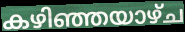
കഴിഞ്ഞയാഴ്ച